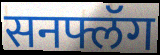
सनफ्लॅग